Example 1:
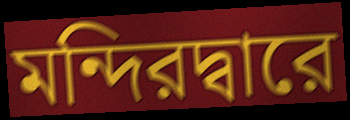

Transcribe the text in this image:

মন্দিরদ্বারে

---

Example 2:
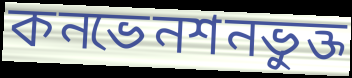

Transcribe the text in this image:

কনভেনশনভুক্ত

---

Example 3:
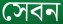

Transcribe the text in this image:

সেবন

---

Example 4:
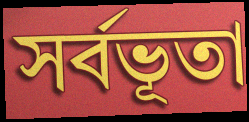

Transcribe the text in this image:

সর্বভূতা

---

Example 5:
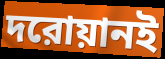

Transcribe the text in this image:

দরোয়ানই